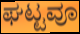
ಘಟ್ಟವೂ